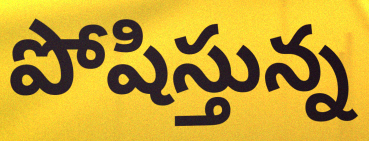
పోషిస్తున్న